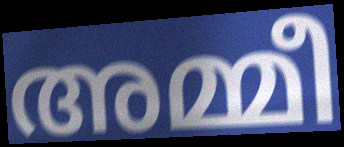
അമ്മീ